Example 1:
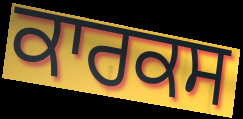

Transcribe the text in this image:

ਕਾਰਕਸ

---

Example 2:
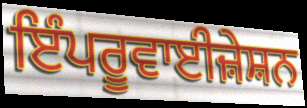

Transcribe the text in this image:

ਇੰਪਰੂਵਾਈਜ਼ੇਸ਼ਨ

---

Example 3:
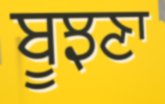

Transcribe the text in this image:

ਬੂਝਣਾ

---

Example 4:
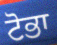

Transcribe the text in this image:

ਟੋਭਾ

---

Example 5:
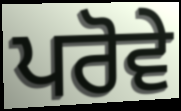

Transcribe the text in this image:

ਪਰੋਵੇ